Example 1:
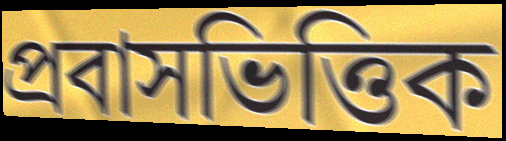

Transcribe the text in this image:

প্রবাসভিত্তিক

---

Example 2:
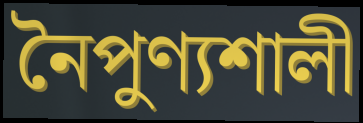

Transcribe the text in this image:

নৈপুণ্যশালী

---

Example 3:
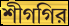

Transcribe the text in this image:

শীগগির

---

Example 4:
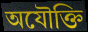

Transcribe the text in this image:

অযৌক্তি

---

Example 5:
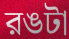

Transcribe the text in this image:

রঙটা